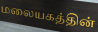
மலையகத்தின்